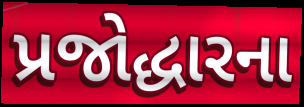
પ્રજોદ્ધારના